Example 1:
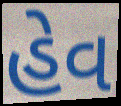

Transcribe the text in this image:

હેવ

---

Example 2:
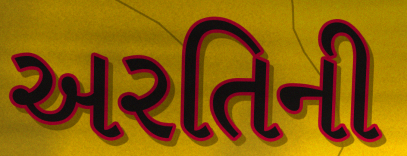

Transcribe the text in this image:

અરતિની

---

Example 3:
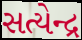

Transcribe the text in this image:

સત્યેન્દ્ર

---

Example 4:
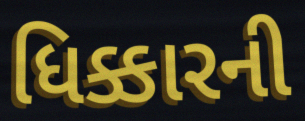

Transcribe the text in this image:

ધિક્કારની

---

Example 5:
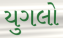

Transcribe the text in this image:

યુગલો